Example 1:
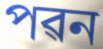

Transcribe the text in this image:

পৱন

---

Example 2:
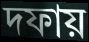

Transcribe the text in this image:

দফায়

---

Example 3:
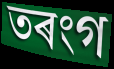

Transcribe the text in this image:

তৰংগ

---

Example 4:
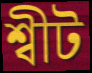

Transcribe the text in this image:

শ্বীট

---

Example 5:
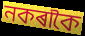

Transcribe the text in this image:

নকৰাকৈ